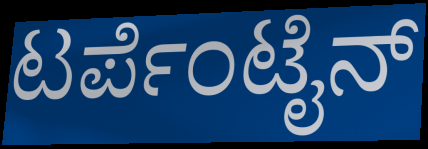
ಟರ್ಪೆಂಟೈನ್